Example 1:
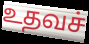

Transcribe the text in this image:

உதவச்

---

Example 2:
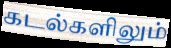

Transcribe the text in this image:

கடல்களிலும்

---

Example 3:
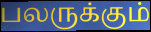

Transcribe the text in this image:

பலருக்கும்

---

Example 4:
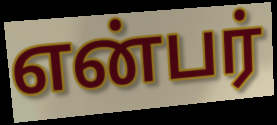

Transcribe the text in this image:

என்பர்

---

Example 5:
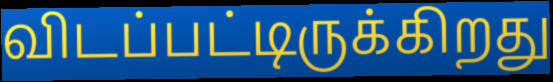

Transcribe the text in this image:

விடப்பட்டிருக்கிறது